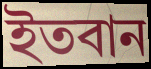
ইতবান